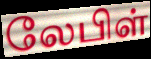
லேபிள்